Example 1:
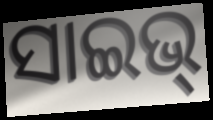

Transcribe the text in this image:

ସାଇଭ୍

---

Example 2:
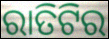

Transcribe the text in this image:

ରାତିଟିର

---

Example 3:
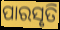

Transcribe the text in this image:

ପାରସୃତି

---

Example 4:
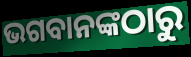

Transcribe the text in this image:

ଭଗବାନଙ୍କଠାରୁ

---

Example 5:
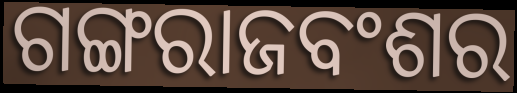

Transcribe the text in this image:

ଗଙ୍ଗରାଜବଂଶର